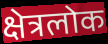
क्षेत्रलोक